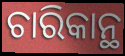
ଚାରିକାନ୍ଥ